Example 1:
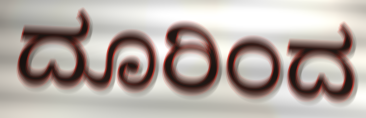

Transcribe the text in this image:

ದೂರಿಂದ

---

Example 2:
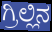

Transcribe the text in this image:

ಗ್ರಿಲ್ಲಿನ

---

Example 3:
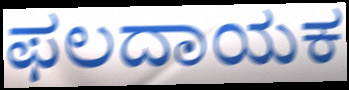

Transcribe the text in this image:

ಫಲದಾಯಕ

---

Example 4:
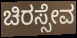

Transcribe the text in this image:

ಚಿರಸ್ಸೇವ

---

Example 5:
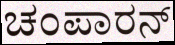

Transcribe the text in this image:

ಚಂಪಾರನ್